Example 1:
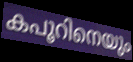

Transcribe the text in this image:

കപൂറിനെയും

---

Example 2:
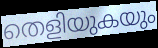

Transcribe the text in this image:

തെളിയുകയും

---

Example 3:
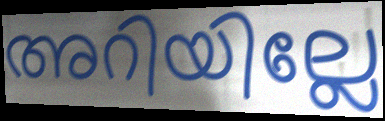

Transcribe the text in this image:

അറിയില്ലേ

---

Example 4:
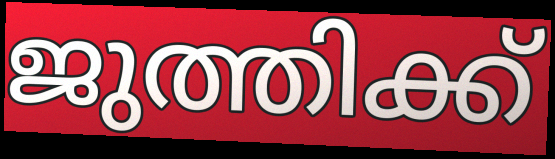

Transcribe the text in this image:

ജുത്തിക്ക്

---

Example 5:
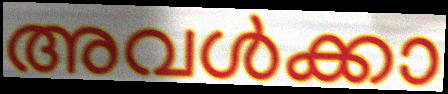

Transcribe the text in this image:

അവൾക്കാ